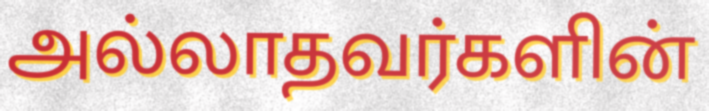
அல்லாதவர்களின்